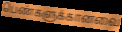
பெண்களுக்கானவை